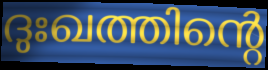
ദുഃഖത്തിന്റെ